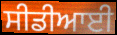
ਸੀਡੀਆਈ